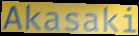
Akasaki